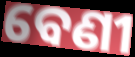
ବେଣୀ